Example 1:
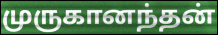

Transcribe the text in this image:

முருகானந்தன்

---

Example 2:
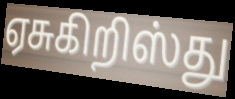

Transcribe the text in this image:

ஏசுகிறிஸ்து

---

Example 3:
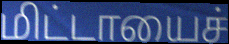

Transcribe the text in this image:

மிட்டாயைச்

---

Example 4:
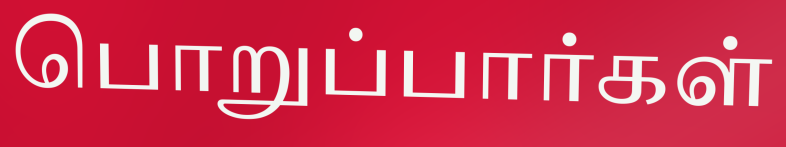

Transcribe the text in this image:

பொறுப்பார்கள்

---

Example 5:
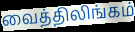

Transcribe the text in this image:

வைத்திலிங்கம்